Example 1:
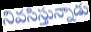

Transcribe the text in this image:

నివసిస్తున్నాడు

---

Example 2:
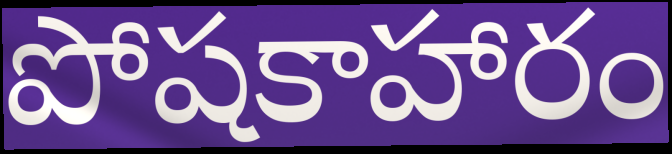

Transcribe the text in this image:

పోషకాహారం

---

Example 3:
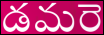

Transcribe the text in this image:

డమరె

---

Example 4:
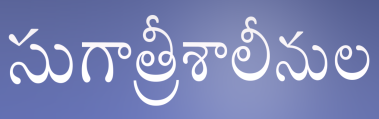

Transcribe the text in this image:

సుగాత్రీశాలీనుల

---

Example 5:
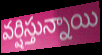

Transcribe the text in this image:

వర్షిస్తున్నాయి